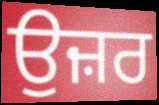
ਉਜ਼ਰ